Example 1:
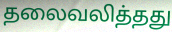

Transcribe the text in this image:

தலைவலித்தது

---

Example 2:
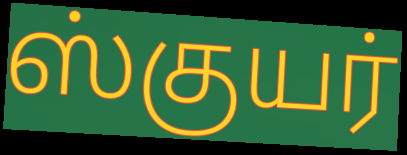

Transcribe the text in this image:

ஸ்குயர்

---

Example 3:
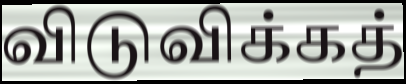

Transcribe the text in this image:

விடுவிக்கத்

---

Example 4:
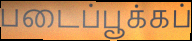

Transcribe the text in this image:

படைப்பூக்கப்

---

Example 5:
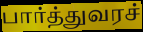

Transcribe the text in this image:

பார்த்துவரச்